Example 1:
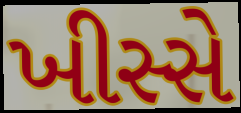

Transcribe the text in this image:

ખીસ્સે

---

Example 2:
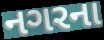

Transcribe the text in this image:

નગરના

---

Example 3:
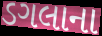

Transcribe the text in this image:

ડગલાના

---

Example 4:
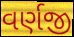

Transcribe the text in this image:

વર્ણજી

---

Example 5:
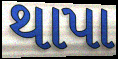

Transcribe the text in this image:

થાપા